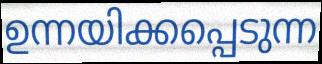
ഉന്നയിക്കപ്പെടുന്ന